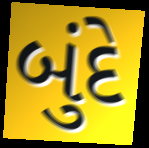
બુંદે